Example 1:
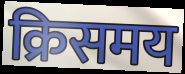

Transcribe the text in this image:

क्रिसमय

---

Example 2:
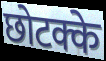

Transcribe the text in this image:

छोटक्के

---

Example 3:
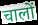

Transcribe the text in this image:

चालों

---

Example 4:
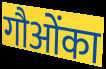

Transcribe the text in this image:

गौओंका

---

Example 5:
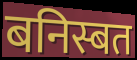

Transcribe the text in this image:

बनिस्बत